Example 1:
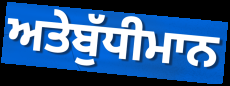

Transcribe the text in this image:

ਅਤੇਬੁੱਧੀਮਾਨ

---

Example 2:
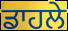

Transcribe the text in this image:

ਡਾਹਲੇ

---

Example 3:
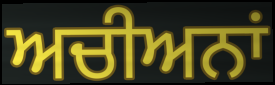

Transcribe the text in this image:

ਅਚੀਅਨਾਂ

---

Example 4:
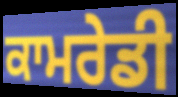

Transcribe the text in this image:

ਕਾਮਰੇਡੀ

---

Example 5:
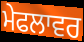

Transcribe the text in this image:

ਮੇਫਲਾਵਰ